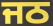
ਜਠ